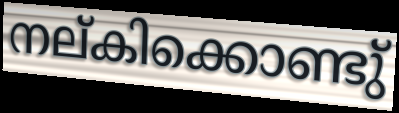
നല്കിക്കൊണ്ടു്